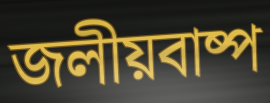
জলীয়বাষ্প